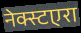
नेक्स्टएरा